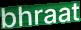
bhraat